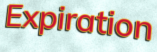
Expiration